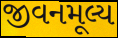
જીવનમૂલ્ય